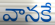
వానకే